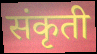
संकृती